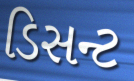
ડિસન્ટ